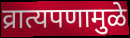
व्रात्यपणामुळे